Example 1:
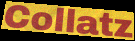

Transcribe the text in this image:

Collatz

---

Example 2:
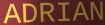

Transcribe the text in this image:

ADRIAN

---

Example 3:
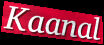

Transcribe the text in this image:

Kaanal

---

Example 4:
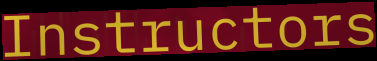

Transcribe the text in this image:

Instructors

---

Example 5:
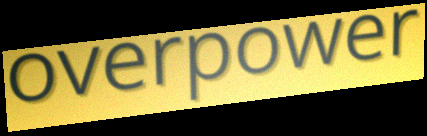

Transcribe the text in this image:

overpower